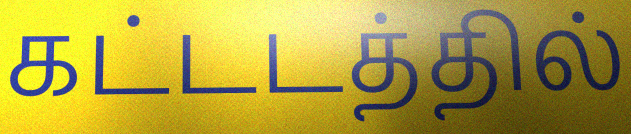
கட்டடத்தில்